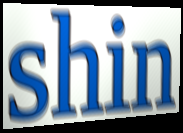
shin